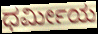
ಧರ್ಮೀಯ